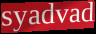
syadvad